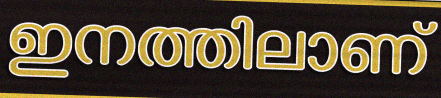
ഇനത്തിലാണ്